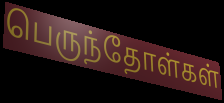
பெருந்தோள்கள்